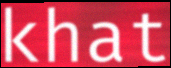
khat